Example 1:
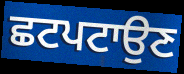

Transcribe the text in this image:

ਛਟਪਟਾਉਣ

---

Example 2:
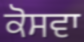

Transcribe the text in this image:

ਕੋਸਵਾ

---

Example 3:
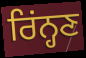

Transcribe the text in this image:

ਰਿਂਨ੍ਹਣ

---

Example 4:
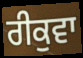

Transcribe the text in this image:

ਰੀਕੁਵਾ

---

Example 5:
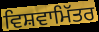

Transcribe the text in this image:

ਵਿਸ਼ਵਾਮਿੱਤਰ